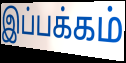
இப்பக்கம்